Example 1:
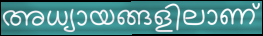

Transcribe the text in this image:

അധ്യായങ്ങളിലാണ്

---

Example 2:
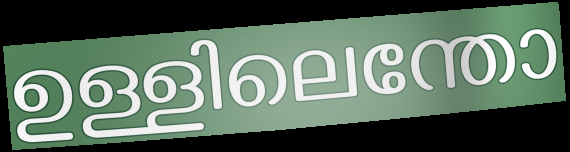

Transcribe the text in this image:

ഉള്ളിലെന്തോ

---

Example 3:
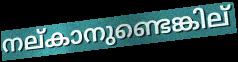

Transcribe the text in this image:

നല്കാനുണ്ടെങ്കില്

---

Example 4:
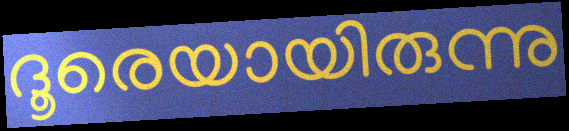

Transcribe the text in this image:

ദൂരെയായിരുന്നു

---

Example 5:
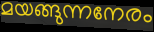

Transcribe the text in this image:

മയങ്ങുന്നനേരം